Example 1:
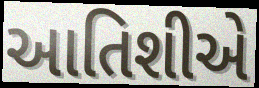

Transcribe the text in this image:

આતિશીએ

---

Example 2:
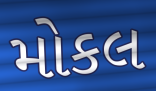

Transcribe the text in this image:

મોકલ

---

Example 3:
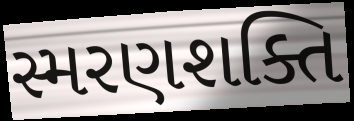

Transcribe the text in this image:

સ્મરણશક્તિ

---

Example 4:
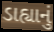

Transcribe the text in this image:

ડાહ્યાનું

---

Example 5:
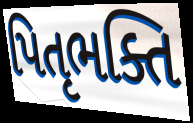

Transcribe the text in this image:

પિતૃભક્તિ